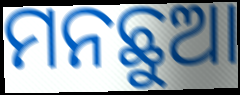
ମନଛୁଆ